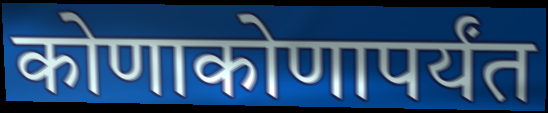
कोणाकोणापर्यंत